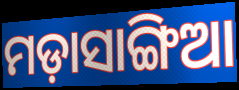
ମଡ଼ାସାଙ୍ଗିଆ